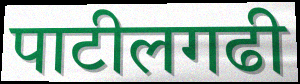
पाटीलगढी